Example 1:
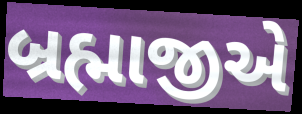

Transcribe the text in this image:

બ્રહ્માજીએ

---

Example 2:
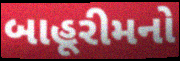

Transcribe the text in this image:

બાહૂરીમનો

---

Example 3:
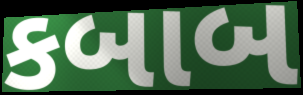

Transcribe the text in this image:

કબાબ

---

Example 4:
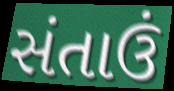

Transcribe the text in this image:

સંતાઉં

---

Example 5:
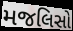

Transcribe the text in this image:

મજલિસો